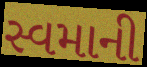
સ્વમાની